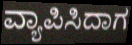
ವ್ಯಾಪಿಸಿದಾಗ